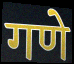
गणे